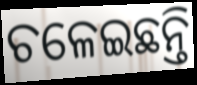
ଚଳେଇଛନ୍ତି